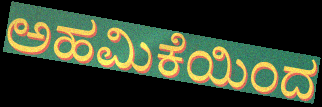
ಅಹಮಿಕೆಯಿಂದ